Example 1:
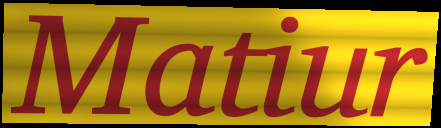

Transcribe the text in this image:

Matiur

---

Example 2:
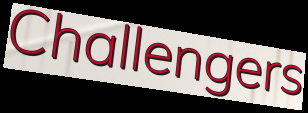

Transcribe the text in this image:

Challengers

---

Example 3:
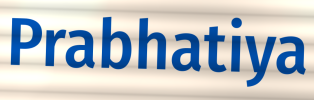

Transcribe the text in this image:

Prabhatiya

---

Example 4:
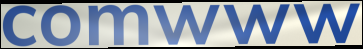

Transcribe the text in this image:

comwww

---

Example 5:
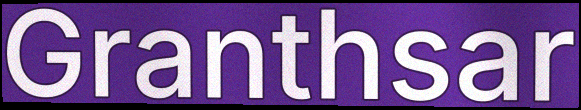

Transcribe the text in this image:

Granthsar